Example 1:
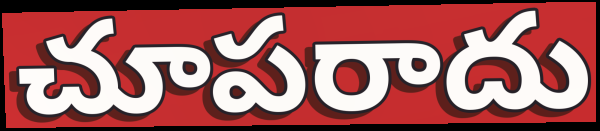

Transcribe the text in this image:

చూపరాదు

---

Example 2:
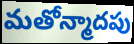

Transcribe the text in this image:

మతోన్మాదపు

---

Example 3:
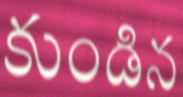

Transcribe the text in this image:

కుండిన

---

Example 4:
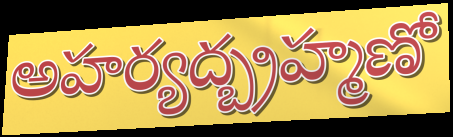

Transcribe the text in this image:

అహర్యద్బ్రహ్మణో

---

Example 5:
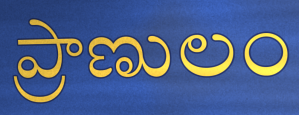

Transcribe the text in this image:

ప్రాణులం